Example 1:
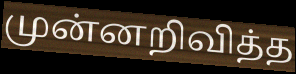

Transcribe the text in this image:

முன்னறிவித்த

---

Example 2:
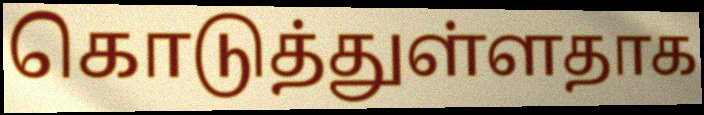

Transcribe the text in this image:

கொடுத்துள்ளதாக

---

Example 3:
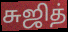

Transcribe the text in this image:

சுஜித்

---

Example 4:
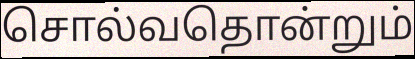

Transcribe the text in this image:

சொல்வதொன்றும்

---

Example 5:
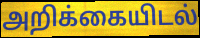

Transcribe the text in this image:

அறிக்கையிடல்